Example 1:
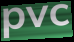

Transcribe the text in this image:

pvc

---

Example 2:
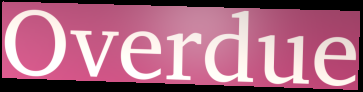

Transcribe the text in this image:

Overdue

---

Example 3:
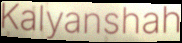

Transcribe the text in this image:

Kalyanshah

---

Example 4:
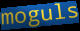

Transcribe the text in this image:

moguls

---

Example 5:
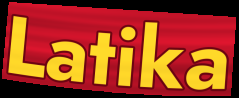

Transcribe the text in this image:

Latika